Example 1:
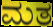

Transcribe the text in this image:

ಮತ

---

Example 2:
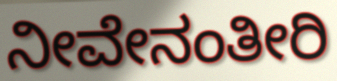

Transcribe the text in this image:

ನೀವೇನಂತೀರಿ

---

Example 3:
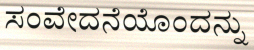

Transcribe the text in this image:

ಸಂವೇದನೆಯೊಂದನ್ನು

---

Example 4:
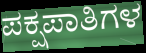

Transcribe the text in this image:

ಪಕ್ಷಪಾತಿಗಳ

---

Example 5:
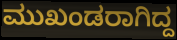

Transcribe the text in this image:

ಮುಖಂಡರಾಗಿದ್ದ